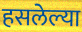
हसलेल्या